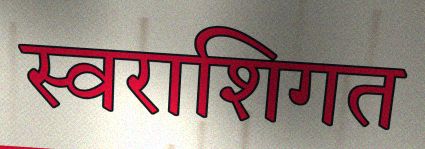
स्वराशिगत